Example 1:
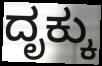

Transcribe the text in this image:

ದೃಕ್ಕು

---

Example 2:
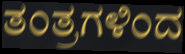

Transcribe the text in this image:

ತಂತ್ರಗಳಿಂದ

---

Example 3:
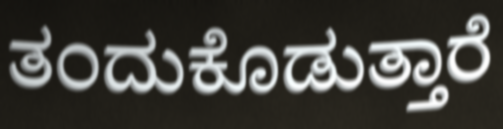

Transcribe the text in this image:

ತಂದುಕೊಡುತ್ತಾರೆ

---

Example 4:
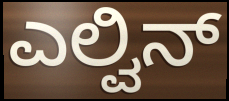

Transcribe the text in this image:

ಎಲ್ವಿನ್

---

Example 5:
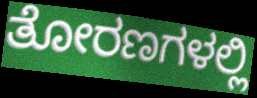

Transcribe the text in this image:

ತೋರಣಗಳಲ್ಲಿ